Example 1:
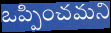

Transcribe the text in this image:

ఒప్పించమని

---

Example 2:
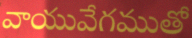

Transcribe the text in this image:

వాయువేగముతో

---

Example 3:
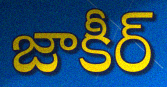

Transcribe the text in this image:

జాకీర్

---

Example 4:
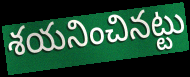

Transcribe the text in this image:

శయనించినట్టు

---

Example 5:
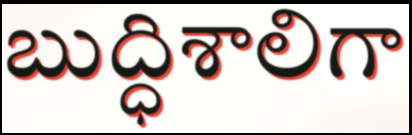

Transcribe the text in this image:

బుద్ధిశాలిగా